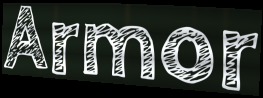
Armor